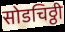
सोडचिठ्ठी